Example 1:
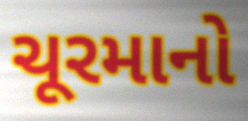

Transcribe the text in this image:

ચૂરમાનો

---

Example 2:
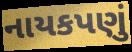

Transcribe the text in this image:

નાયકપણું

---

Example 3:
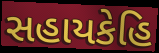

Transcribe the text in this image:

સહાયકેહિ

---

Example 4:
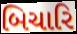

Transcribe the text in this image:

બિચારિ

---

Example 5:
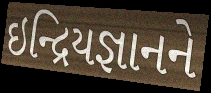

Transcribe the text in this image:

ઇન્દ્રિયજ્ઞાનને